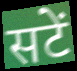
सटें